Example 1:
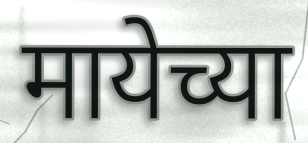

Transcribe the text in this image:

मायेच्या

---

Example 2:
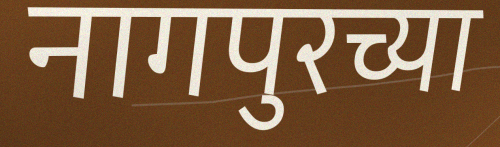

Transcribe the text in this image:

नागपुरच्या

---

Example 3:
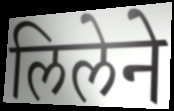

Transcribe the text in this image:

लिलेने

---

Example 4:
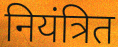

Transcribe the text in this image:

नियंत्रित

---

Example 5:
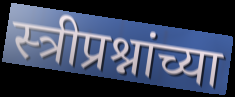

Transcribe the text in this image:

स्त्रीप्रश्नांच्या